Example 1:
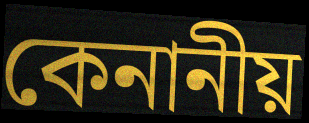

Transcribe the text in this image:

কেনানীয়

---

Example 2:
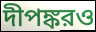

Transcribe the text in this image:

দীপঙ্করও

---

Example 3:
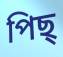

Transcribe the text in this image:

পিছ্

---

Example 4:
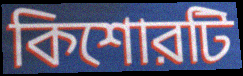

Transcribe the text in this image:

কিশোরটি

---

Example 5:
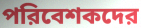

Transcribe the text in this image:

পরিবেশকদের